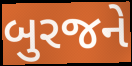
બુરજને